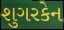
શુગરકેન